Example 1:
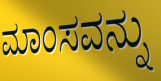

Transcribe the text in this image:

ಮಾಂಸವನ್ನು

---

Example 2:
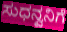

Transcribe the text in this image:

ಸುಧನ್ವನಿಗೆ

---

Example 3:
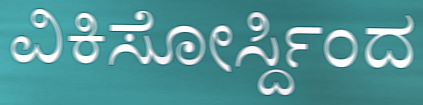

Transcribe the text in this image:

ವಿಕಿಸೋರ್ಸ್ದಿಂದ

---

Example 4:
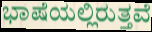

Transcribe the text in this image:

ಭಾಷೆಯಲ್ಲಿರುತ್ತವೆ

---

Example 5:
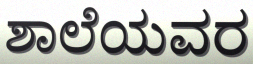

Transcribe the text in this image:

ಶಾಲೆಯವರ